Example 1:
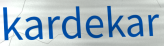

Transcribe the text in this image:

kardekar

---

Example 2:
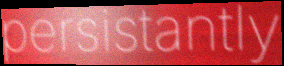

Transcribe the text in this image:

persistantly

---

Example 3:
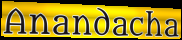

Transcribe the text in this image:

Anandacha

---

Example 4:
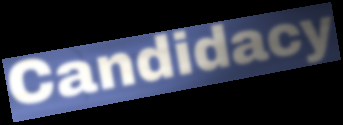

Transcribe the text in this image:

Candidacy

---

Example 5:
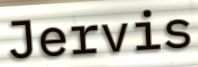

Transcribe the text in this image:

Jervis